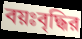
বয়ঃবৃদ্ধির